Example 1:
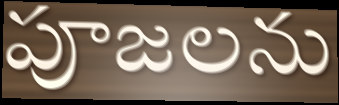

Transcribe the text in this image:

పూజలను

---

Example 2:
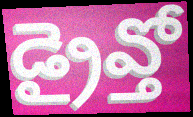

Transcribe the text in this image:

డ్రైవ్తో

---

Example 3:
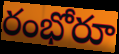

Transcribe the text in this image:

రంభోరూ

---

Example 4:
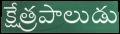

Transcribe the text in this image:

క్షేత్రపాలుడు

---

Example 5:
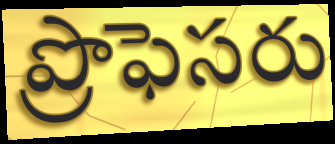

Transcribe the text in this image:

ప్రొఫెసరు